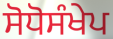
ਸੋਧੋਸੰਖੇਪ